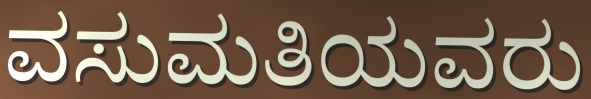
ವಸುಮತಿಯವರು